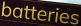
batteries